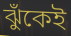
ঝুঁকেই